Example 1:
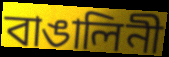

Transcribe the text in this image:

বাঙালিনী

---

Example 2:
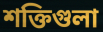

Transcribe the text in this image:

শক্তিগুলা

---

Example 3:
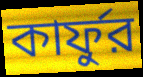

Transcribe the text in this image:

কার্ফুর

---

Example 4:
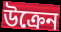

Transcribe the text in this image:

উক্রেন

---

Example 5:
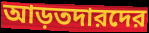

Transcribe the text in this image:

আড়তদারদের